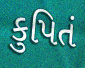
કુપિતં